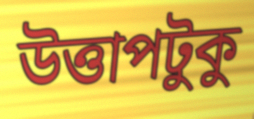
উত্তাপটুকু